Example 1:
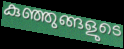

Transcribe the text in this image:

കുഞ്ഞുങ്ങളുടെ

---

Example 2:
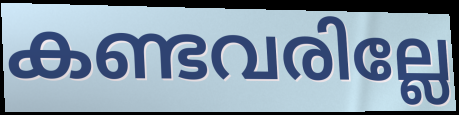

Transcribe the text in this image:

കണ്ടവരില്ലേ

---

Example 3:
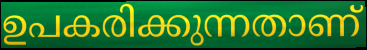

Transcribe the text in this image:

ഉപകരിക്കുന്നതാണ്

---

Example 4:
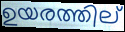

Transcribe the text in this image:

ഉയരത്തില്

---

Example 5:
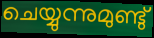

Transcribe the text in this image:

ചെയ്യുന്നുമുണ്ടു്